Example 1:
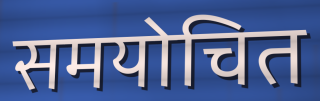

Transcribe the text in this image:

समयोचित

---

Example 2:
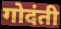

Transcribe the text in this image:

गोदंती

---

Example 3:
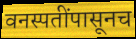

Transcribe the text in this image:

वनस्पतींपासूनच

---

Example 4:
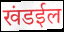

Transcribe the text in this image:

खंडईल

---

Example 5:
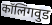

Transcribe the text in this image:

कॉलिंगवुड